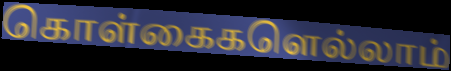
கொள்கைகளெல்லாம்